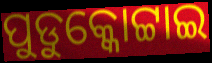
ପୁଡୁକ୍କୋଟ୍ଟାଇ